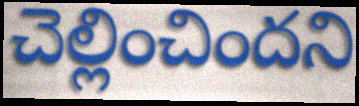
చెల్లించిందని